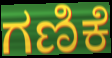
ಗಣಿಕೆ